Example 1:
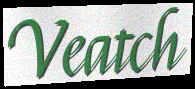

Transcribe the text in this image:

Veatch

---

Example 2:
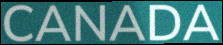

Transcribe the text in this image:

CANADA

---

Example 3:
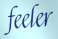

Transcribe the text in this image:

feeler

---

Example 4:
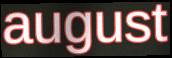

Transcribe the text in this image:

august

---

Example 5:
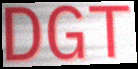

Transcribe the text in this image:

DGT